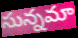
సున్నమా